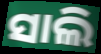
ସାଲି